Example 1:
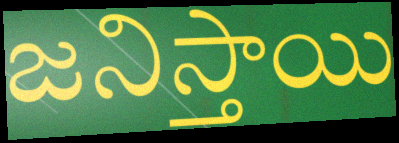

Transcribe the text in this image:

జనిస్తాయి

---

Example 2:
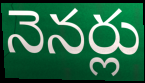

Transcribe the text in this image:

నెనర్లు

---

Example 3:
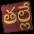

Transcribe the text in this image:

తల్లే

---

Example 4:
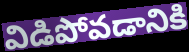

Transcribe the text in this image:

విడిపోవడానికి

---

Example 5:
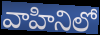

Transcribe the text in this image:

వాహినిలో